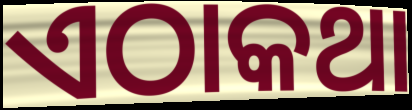
ଏଠାକଥା